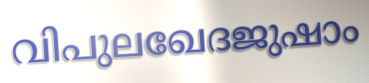
വിപുലഖേദജുഷാം